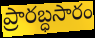
ప్రారబ్ధసారం